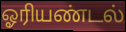
ஓரியண்டல்